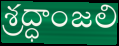
శ్రద్ధాంజలి